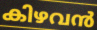
കിഴവൻ